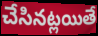
చేసినట్లయితే